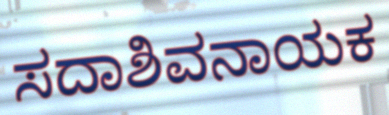
ಸದಾಶಿವನಾಯಕ